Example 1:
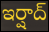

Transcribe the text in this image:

ఇర్షాద్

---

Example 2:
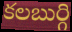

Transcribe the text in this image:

కలబుర్గి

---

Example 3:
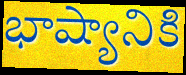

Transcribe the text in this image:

భాష్యానికి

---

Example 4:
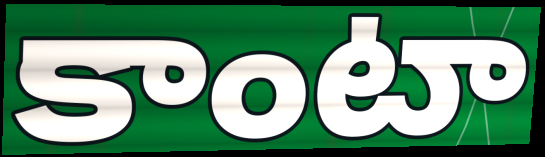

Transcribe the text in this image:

కాంటా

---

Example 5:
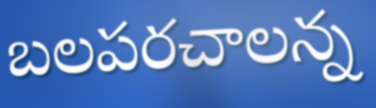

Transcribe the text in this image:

బలపరచాలన్న